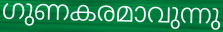
ഗുണകരമാവുന്നു